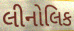
લીનોલિક